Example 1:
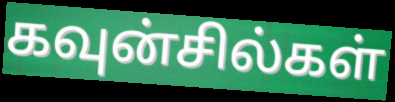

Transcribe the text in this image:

கவுன்சில்கள்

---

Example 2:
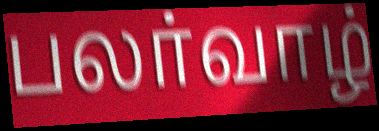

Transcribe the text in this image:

பலர்வாழ்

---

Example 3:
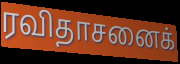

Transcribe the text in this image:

ரவிதாசனைக்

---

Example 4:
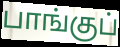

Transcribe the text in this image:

பாங்குப்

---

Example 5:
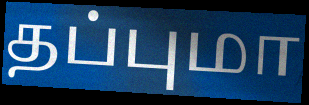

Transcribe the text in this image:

தப்புமா